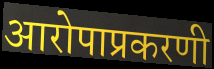
आरोपाप्रकरणी